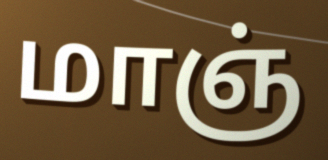
மாஞ்